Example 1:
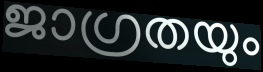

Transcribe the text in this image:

ജാഗ്രതയും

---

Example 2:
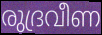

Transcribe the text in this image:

രുദ്രവീണ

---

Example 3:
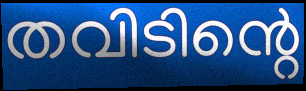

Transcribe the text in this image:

തവിടിന്റെ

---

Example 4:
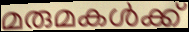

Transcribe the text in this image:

മരുമകൾക്ക്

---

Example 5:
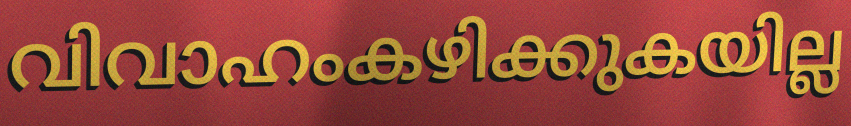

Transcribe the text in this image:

വിവാഹംകഴിക്കുകയില്ല